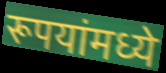
रूपयांमध्ये